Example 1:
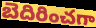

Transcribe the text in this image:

బెదిరించగా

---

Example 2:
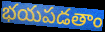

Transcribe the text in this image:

భయపడతాం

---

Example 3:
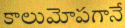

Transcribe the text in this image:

కాలుమోపగానే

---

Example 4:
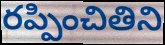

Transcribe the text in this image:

రప్పించితిని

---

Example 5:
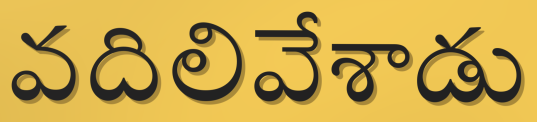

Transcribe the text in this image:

వదిలివేశాడు